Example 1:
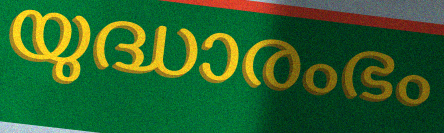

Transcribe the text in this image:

യുദ്ധാരംഭം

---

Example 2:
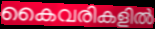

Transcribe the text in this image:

കൈവരികളിൽ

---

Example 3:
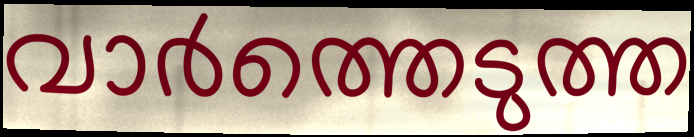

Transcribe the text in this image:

വാർത്തെടുത്ത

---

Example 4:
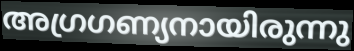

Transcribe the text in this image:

അഗ്രഗണ്യനായിരുന്നു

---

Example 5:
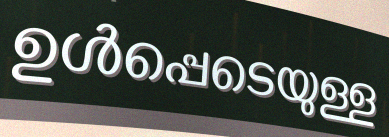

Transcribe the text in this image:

ഉൾപ്പെടെയുള്ള